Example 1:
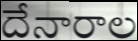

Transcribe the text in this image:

దేనారాల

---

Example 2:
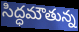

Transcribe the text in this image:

సిద్ధమౌతున్న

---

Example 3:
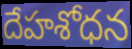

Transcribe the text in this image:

దేహశోధన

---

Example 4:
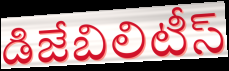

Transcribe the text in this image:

డిజేబిలిటీస్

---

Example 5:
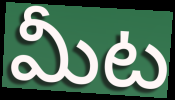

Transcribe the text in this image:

మీట